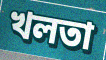
খলতা